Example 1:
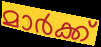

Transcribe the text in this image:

മാർക്ക്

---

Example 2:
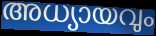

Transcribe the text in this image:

അധ്യായവും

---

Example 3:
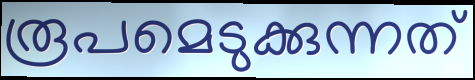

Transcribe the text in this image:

രൂപമെടുക്കുന്നത്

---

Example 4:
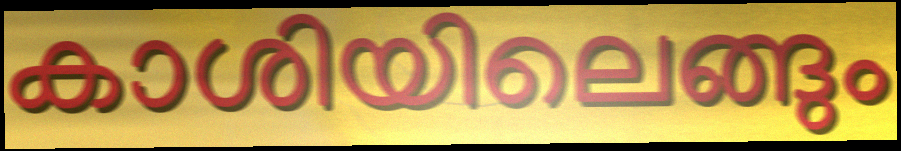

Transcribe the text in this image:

കാശിയിലെങ്ങും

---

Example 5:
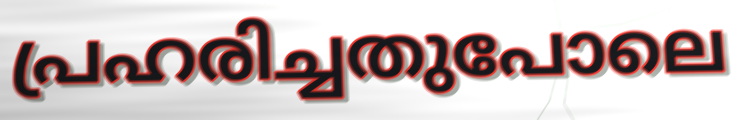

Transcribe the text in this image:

പ്രഹരിച്ചതുപോലെ